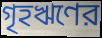
গৃহঋণের